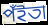
পঁইতা